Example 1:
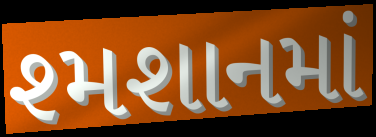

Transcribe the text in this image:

શ્મશાનમાં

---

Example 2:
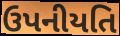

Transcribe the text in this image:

ઉપનીયતિ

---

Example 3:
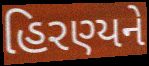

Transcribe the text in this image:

હિરણ્યને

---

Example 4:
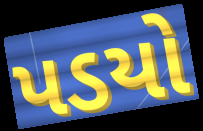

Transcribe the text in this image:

પડયો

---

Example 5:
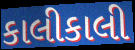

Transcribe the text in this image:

કાલીકાલી